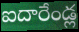
ఐదారేండ్ల